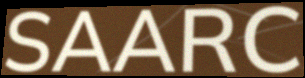
SAARC